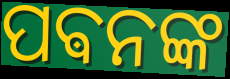
ପଵନଙ୍କ